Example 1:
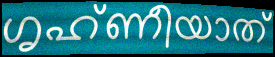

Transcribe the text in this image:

ഗൃഹ്ണീയാത്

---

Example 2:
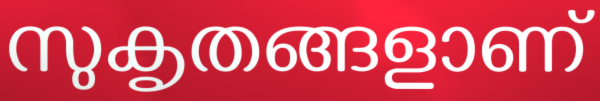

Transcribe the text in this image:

സുകൃതങ്ങളാണ്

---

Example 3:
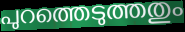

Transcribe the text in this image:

പുറത്തെടുത്തതും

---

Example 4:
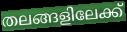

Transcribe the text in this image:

തലങ്ങളിലേക്ക്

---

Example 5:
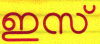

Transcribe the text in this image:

ഇസ്